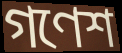
গণেশ